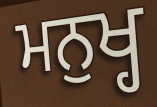
ਮਨੁਖ੍ਹ